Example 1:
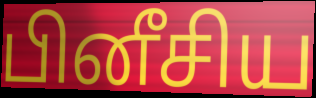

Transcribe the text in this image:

பினீசிய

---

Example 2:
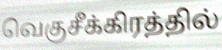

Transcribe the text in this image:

வெகுசீக்கிரத்தில்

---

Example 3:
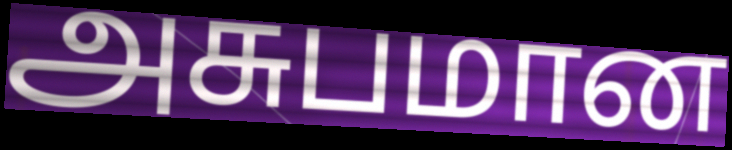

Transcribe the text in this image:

அசுபமான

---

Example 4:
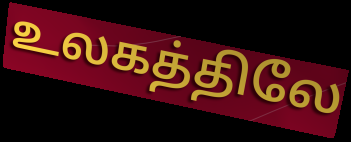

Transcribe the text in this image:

உலகத்திலே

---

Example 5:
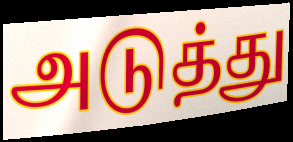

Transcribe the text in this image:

அடுத்து